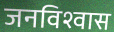
जनविश्वास